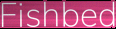
Fishbed